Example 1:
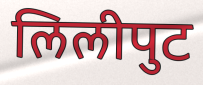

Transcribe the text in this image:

लिलीपुट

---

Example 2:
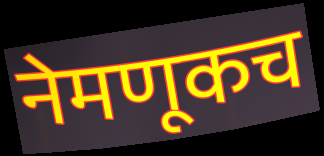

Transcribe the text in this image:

नेमणूकच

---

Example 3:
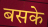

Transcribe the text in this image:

बसके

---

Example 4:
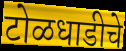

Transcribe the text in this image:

टोळधाडीचे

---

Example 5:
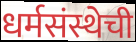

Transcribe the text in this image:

धर्मसंस्थेची